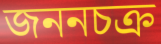
জননচক্র